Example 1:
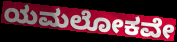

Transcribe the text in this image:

ಯಮಲೋಕವೇ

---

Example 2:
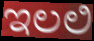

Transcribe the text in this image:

ಇಲಲಿ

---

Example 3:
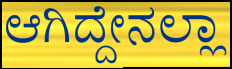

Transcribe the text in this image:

ಆಗಿದ್ದೇನಲ್ಲಾ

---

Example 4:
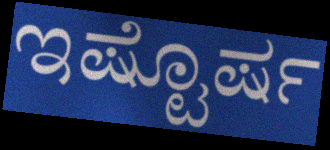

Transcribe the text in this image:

ಇಷ್ಟೊರ್ಷ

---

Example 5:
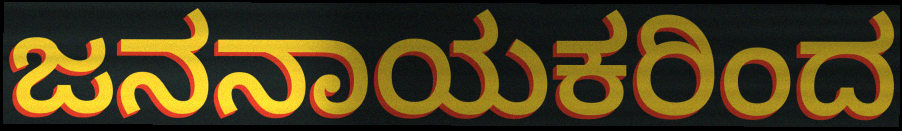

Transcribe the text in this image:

ಜನನಾಯಕರಿಂದ